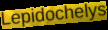
Lepidochelys